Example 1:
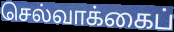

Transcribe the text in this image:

செல்வாக்கைப்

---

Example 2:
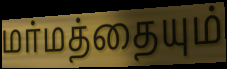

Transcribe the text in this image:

மர்மத்தையும்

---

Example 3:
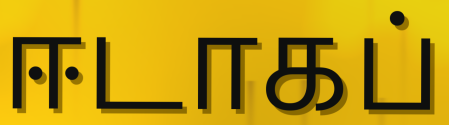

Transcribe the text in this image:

ஈடாகப்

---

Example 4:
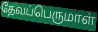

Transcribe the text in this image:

தேவப்பெருமாள்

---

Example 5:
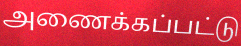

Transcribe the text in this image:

அணைக்கப்பட்டு